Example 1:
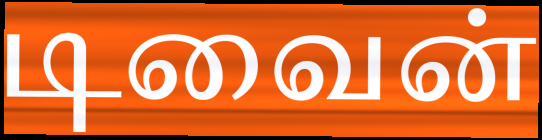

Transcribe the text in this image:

டிவைன்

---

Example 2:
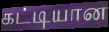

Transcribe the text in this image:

கட்டியான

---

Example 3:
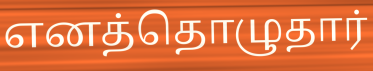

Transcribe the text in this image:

எனத்தொழுதார்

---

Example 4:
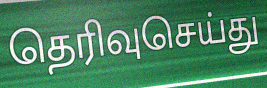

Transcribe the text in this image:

தெரிவுசெய்து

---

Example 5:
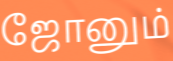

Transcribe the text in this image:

ஜோனும்